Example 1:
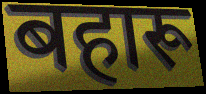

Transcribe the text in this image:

बहारू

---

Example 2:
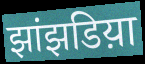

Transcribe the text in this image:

झांझडिय़ा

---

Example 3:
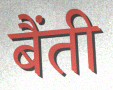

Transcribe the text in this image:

बैंती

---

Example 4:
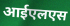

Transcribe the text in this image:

आईएलएस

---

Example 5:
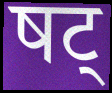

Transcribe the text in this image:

षट्